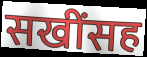
सखींसह